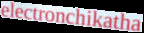
electronchikatha